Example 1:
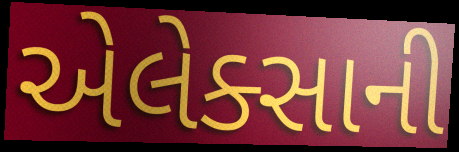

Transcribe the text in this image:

એલેક્સાની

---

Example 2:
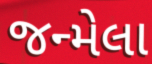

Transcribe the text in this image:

જન્મેલા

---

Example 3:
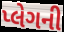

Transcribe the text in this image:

પ્લેગની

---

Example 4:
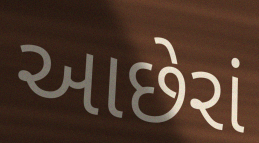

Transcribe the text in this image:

આછેરાં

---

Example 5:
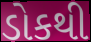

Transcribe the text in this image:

ડોકથી